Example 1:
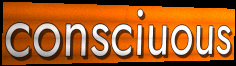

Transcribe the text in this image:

consciuous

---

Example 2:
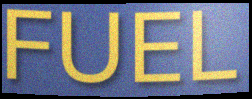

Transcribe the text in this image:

FUEL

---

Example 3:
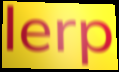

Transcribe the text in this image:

lerp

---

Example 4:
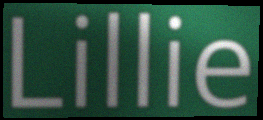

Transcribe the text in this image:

Lillie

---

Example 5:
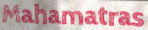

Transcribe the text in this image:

Mahamatras